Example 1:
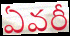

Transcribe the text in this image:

ఏవరీ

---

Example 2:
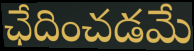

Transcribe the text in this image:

ఛేదించడమే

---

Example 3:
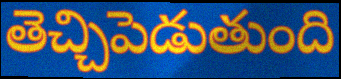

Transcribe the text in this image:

తెచ్చిపెడుతుంది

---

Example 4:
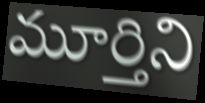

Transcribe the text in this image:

మూర్తిని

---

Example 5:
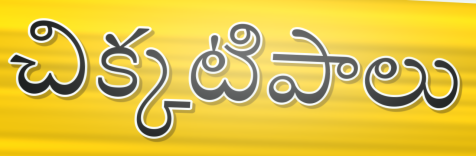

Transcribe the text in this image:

చిక్కటిపాలు